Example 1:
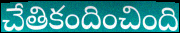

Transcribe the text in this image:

చేతికందించింది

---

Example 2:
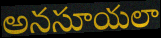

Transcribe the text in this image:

అనసూయలా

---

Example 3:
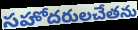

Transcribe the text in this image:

సహోదరులచేతను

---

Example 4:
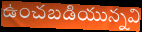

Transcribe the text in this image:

ఉంచబడియున్నవి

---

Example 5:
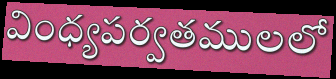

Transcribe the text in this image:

వింధ్యపర్వతములలో